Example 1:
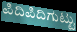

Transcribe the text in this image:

ಪಿದಿಪಿದಿಗುಟ್ಟು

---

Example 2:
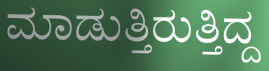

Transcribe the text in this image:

ಮಾಡುತ್ತಿರುತ್ತಿದ್ದ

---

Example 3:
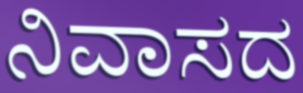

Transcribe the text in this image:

ನಿವಾಸದ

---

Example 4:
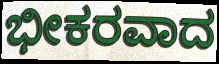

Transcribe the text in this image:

ಭೀಕರವಾದ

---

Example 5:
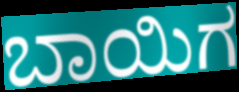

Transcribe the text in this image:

ಬಾಯಿಗ